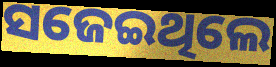
ସଜେଇଥିଲେ